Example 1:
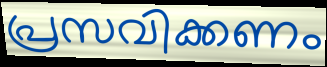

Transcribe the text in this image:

പ്രസവിക്കണം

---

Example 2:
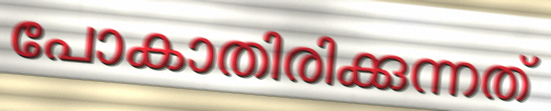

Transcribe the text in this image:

പോകാതിരിക്കുന്നത്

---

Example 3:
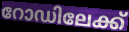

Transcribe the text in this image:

റോഡിലേക്ക്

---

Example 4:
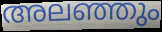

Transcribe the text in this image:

അലഞ്ഞും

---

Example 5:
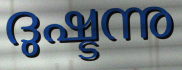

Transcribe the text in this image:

ദുഷ്ടന്നു